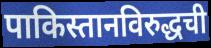
पाकिस्तानविरुद्धची